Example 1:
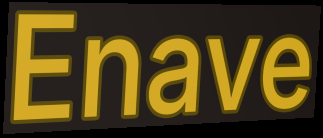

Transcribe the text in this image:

Enave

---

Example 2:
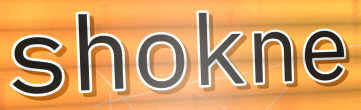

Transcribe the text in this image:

shokne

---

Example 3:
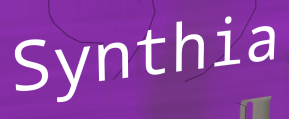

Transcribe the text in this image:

Synthia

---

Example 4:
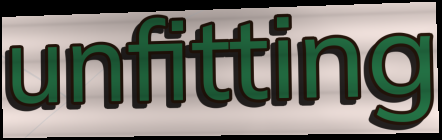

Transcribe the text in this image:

unfitting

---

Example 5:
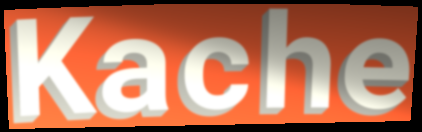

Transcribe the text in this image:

Kache